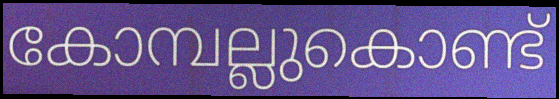
കോമ്പല്ലുകൊണ്ട്